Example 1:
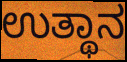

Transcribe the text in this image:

ಉತ್ಥಾನ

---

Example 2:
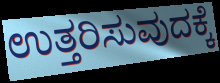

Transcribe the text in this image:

ಉತ್ತರಿಸುವುದಕ್ಕೆ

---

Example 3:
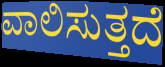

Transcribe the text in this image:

ವಾಲಿಸುತ್ತದೆ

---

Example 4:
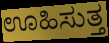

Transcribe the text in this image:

ಊಹಿಸುತ್ತ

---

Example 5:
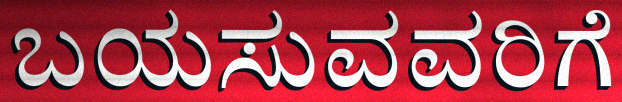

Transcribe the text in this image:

ಬಯಸುವವರಿಗೆ